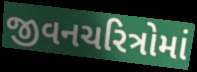
જીવનચરિત્રોમાં